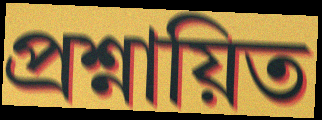
প্রশ্নায়িত